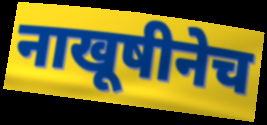
नाखूषीनेच